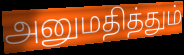
அனுமதித்தும்